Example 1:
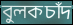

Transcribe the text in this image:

বুলকচাঁদ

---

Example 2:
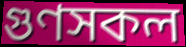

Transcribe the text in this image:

গুণসকল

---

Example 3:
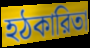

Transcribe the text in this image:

হঠকারিতা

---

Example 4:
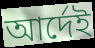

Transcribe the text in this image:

আর্দেই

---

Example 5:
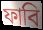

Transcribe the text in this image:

ফাবি